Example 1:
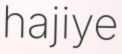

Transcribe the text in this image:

hajiye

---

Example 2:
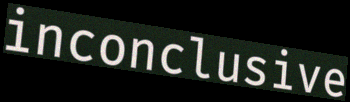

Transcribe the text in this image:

inconclusive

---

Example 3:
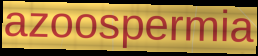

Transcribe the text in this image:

azoospermia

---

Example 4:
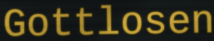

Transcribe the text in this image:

Gottlosen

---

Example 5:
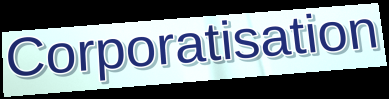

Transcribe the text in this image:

Corporatisation